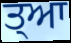
ਤ੍ਆ